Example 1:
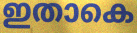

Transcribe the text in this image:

ഇതാകെ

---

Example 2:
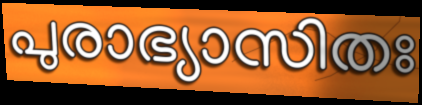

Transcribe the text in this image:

പുരാഭ്യാസിതഃ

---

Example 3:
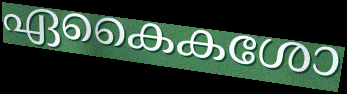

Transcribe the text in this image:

ഏകൈകശോ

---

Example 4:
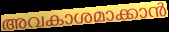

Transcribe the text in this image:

അവകാശമാക്കാൻ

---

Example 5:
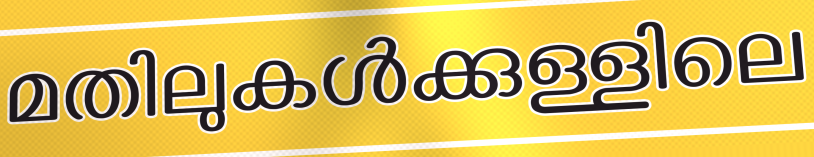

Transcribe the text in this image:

മതിലുകൾക്കുള്ളിലെ